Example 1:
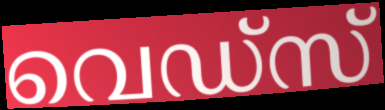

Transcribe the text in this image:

വെഡ്സ്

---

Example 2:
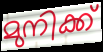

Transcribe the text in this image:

മുനിക്ക്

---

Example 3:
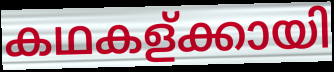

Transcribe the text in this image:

കഥകള്ക്കായി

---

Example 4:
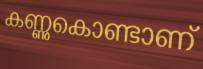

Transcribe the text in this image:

കണ്ണുകൊണ്ടാണ്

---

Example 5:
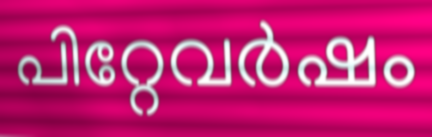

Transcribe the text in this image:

പിറ്റേവർഷം